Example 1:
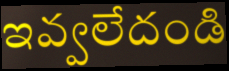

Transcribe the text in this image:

ఇవ్వలేదండి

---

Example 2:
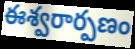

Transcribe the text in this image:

ఈశ్వరార్పణం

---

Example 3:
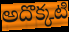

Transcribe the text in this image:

అదొక్కటి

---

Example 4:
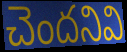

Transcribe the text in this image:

చెందనివి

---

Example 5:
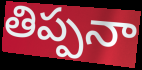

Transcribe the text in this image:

తిప్పనా